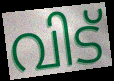
വിട്